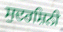
ਸੁਦਰਸ਼ਿਨੀ